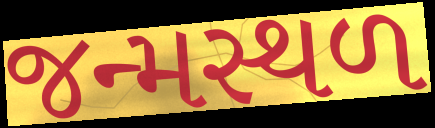
જન્મસ્થળ